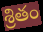
శ్రితం